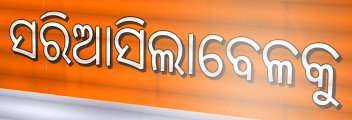
ସରିଆସିଲାବେଳକୁ